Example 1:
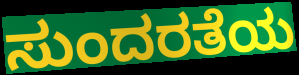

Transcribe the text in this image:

ಸುಂದರತೆಯ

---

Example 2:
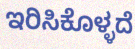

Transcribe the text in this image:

ಇರಿಸಿಕೊಳ್ಳದೆ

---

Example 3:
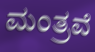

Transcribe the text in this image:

ಮಂತ್ರವೆ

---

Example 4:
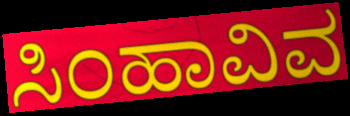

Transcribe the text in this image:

ಸಿಂಹಾವಿವ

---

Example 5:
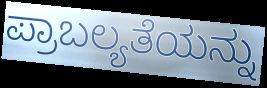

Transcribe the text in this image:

ಪ್ರಾಬಲ್ಯತೆಯನ್ನು